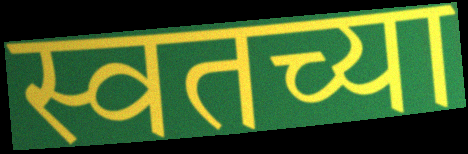
स्वतच्या